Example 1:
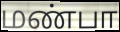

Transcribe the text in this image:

மண்பா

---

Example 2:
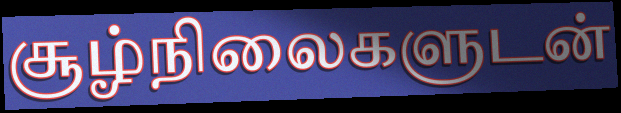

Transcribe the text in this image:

சூழ்நிலைகளுடன்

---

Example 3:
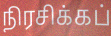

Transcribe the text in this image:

நிரசிக்கப்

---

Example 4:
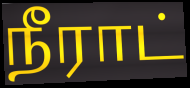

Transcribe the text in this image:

நீராட்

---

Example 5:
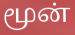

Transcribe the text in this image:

மூன்